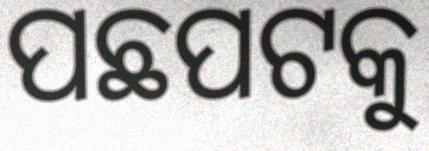
ପଛପଟକୁ